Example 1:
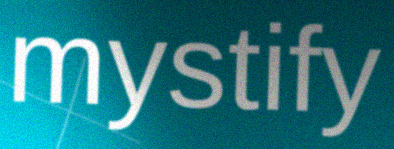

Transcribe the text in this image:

mystify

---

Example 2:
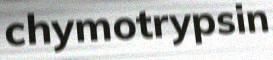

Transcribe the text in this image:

chymotrypsin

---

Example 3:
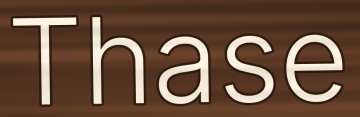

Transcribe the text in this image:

Thase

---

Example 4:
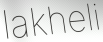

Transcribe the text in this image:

lakheli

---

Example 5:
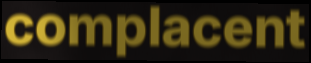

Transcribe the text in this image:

complacent